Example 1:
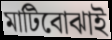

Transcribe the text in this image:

মাটিবোঝাই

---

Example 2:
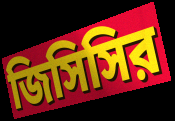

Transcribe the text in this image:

জিসিসির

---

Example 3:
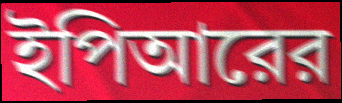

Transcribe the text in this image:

ইপিআরের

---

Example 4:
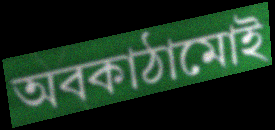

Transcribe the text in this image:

অবকাঠামোই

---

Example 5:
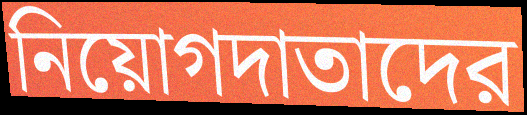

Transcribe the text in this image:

নিয়োগদাতাদের